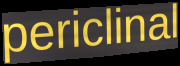
periclinal